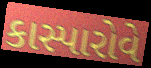
કાસ્પારોવે